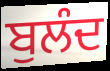
ਬੁਲੰਦ